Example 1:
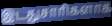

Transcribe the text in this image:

இடதுசாரிகளாக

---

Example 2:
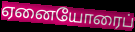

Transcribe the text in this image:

ஏனையோரைப்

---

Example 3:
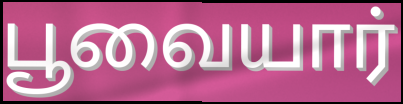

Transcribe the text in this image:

பூவையார்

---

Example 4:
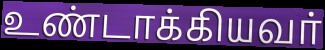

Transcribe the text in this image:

உண்டாக்கியவர்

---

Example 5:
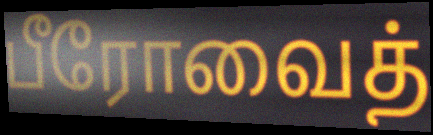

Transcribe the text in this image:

பீரோவைத்